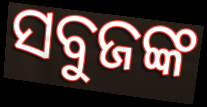
ସବୁଜଙ୍କ